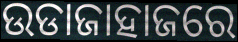
ଉଡାଜାହାଜରେ